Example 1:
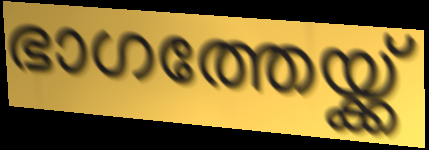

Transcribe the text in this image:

ഭാഗത്തേയ്ക്ക്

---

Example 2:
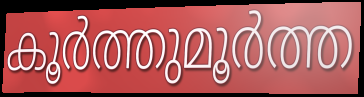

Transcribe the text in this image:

കൂർത്തുമൂർത്ത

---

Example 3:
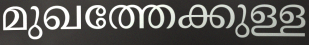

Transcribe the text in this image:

മുഖത്തേക്കുള്ള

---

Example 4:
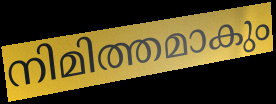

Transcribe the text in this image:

നിമിത്തമാകും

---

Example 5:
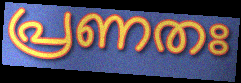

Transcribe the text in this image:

പ്രണതഃ